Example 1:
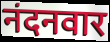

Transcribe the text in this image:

नंदनवार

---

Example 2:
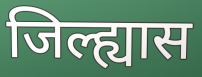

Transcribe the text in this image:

जिल्ह्यास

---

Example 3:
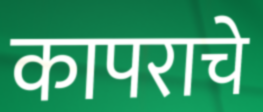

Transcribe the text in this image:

कापराचे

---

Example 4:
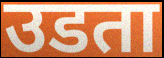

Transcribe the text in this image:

उडता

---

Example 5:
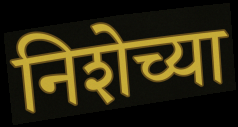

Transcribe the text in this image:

निशेच्या